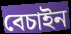
বেচাইন